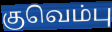
குவெம்பு